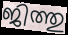
ജിത്തു